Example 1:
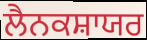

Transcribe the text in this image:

ਲੈਨਕਸ਼ਾਯਰ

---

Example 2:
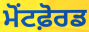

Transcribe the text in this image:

ਮੋਂਟਫ਼ੋਰਡ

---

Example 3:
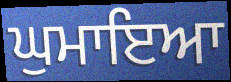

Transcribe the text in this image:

ਘੁਮਾਇਆ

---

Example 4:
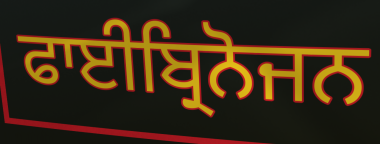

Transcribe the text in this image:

ਫਾਈਬ੍ਰਿਨੋਜਨ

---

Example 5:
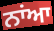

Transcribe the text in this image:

ਨਾਂਆ